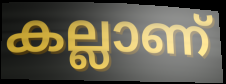
കല്ലാണ്